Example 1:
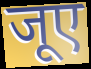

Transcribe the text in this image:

जूए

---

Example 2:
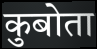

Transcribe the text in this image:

कुबोता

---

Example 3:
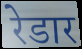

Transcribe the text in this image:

रेडार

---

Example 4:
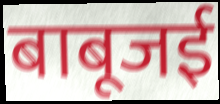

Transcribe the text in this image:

बाबूजई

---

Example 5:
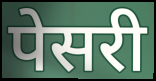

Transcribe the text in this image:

पेसरी